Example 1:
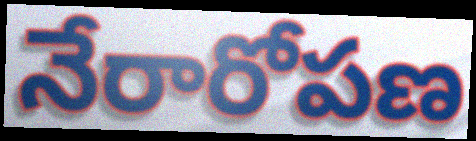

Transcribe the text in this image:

నేరారోపణ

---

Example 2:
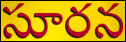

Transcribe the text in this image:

సూరన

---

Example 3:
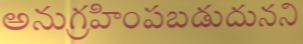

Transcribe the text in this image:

అనుగ్రహింపబడుదునని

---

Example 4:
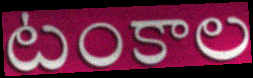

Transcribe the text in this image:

టంకాల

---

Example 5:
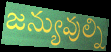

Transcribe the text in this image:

జన్యువుల్ని